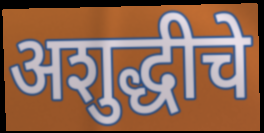
अशुद्धीचे